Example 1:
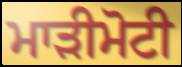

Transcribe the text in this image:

ਮਾੜੀਮੋਟੀ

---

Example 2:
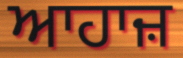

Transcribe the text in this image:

ਆਹਾਜ਼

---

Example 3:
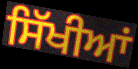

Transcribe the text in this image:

ਸਿੱਖੀਆਂ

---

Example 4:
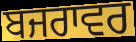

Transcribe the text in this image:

ਬਜਰਾਵਰ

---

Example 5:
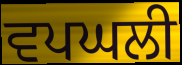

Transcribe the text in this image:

ਵਪਘਲੀ